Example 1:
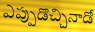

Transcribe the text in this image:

ఎప్పుడొచ్చినాడో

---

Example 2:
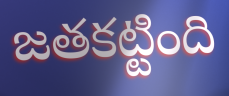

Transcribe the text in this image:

జతకట్టింది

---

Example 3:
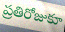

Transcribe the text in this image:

ప్రతిరోజుకూ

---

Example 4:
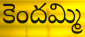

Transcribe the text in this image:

కెందమ్మి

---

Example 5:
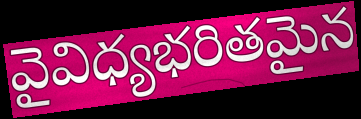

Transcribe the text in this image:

వైవిధ్యభరితమైన